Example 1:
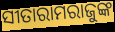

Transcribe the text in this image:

ସୀତାରାମରାଜୁଙ୍କ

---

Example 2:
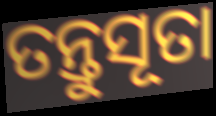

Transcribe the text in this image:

ତନ୍ତୁସୂତା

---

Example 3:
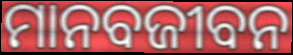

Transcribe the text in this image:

ମାନବଜୀବନ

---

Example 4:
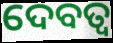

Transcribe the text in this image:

ଦେବତ୍ୱ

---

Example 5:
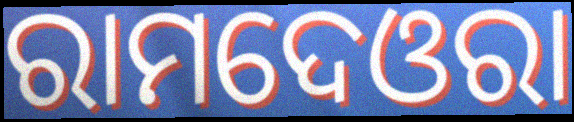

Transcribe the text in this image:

ରାମଦେଓରା